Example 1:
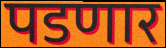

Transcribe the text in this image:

पडणार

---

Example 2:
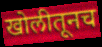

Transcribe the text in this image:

खोलीतूनच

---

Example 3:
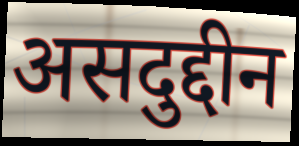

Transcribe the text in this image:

असदुद्दीन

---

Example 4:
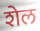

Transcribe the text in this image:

शेल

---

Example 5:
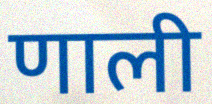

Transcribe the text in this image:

णाली